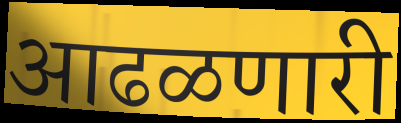
आढळणारी